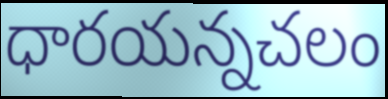
ధారయన్నచలం